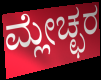
ಮ್ಲೇಚ್ಛರ